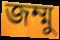
জম্মু